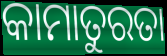
କାମାତୁରତା